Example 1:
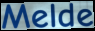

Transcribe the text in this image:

Melde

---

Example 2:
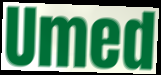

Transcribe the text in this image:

Umed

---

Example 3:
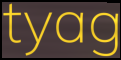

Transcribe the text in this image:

tyag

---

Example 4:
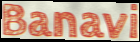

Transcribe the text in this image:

Banavi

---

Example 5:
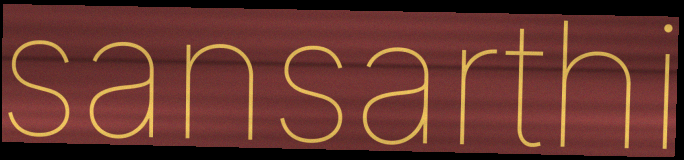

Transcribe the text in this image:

sansarthi